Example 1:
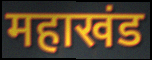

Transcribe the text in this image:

महाखंड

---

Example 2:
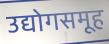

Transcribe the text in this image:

उद्योगसमूह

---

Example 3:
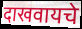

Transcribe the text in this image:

दाखवायचे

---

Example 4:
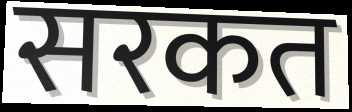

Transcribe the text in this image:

सरकत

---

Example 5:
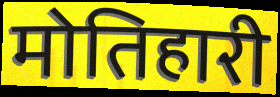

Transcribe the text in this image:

मोतिहारी